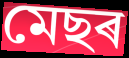
মেছৰ